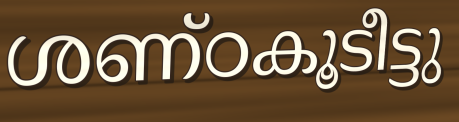
ശണ്ഠകൂടീട്ടു